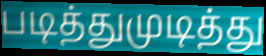
படித்துமுடித்து